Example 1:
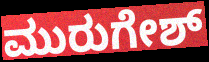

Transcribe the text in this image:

ಮುರುಗೇಶ್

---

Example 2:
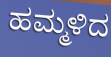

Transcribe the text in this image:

ಹಮ್ಮಳಿದ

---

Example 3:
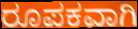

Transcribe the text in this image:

ರೂಪಕವಾಗಿ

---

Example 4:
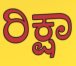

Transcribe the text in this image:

ರಿಕ್ಷಾ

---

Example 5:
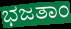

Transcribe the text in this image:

ಭಜತಾಂ